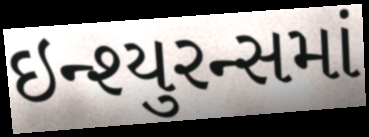
ઇન્શ્યુરન્સમાં